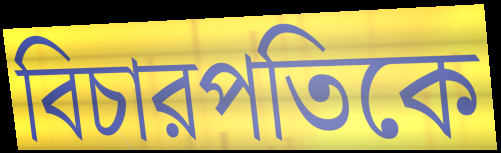
বিচারপতিকে